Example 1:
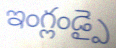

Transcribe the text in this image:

ఇంగ్లండ్పై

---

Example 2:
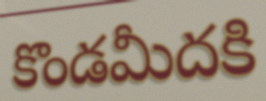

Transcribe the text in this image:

కొండమీదకి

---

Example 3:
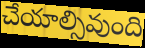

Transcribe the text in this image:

చేయాల్సివుంది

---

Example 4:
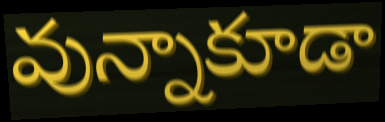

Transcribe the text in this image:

వున్నాకూడా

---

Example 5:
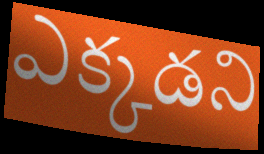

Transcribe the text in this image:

ఎక్కడని